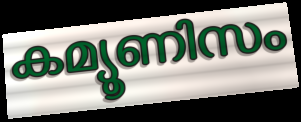
കമ്യൂണിസം